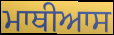
ਮਾਥੀਆਸ